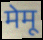
मेमू